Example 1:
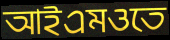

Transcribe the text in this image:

আইএমওতে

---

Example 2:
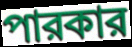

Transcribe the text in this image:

পারকার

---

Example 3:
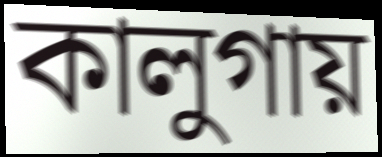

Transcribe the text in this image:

কালুগায়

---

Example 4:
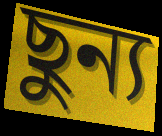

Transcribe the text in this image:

ছুন্য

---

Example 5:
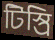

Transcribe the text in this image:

টিস্ত্রি